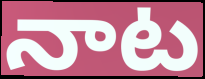
నాట